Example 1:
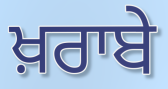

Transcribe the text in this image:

ਖ਼ਰਾਬੇ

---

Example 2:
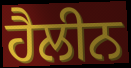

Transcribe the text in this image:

ਹੈਲੀਨ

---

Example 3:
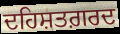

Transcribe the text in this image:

ਦਹਿਸ਼ਤਗ਼ਰਦ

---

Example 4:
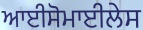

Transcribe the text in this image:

ਆਈਸੋਮਾਈਲੇਸ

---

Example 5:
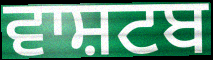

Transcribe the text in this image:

ਵਾਸ਼ਟਬ